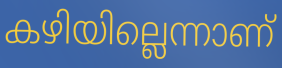
കഴിയില്ലെന്നാണ്